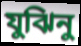
যুঝিনু